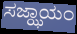
ಸಜ್ಝಾಯಂ